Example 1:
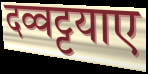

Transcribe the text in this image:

दव्वट्टयाए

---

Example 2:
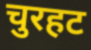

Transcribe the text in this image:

चुरहट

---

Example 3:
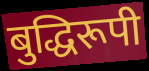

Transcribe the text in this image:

बुद्धिरूपी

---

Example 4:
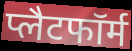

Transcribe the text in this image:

प्लैटफॉर्म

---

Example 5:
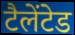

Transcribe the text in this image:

टैलेंटेड